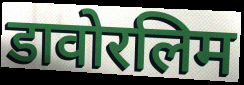
डावोरलिम